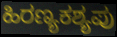
ಹಿರಣ್ಯಕಶ್ಯಪು